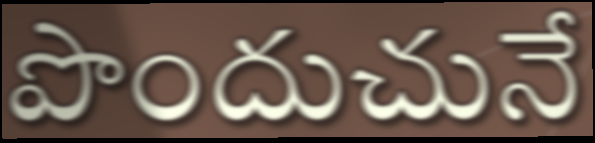
పొందుచునే